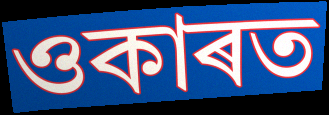
ওকাৰত